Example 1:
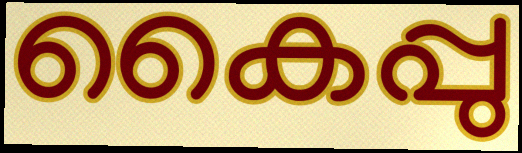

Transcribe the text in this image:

കൈപ്പു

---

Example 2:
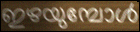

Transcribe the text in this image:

ഇഴയുമ്പോൾ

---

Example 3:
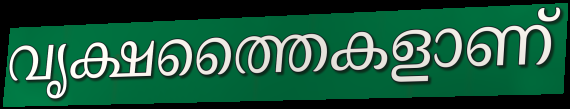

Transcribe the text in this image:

വൃക്ഷത്തൈകളാണ്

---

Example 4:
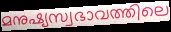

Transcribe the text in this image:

മനുഷ്യസ്വഭാവത്തിലെ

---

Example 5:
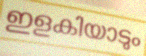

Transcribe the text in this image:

ഇളകിയാടും